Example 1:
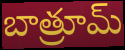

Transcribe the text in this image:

బాత్రూమ్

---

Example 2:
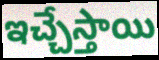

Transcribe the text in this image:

ఇచ్చేస్తాయి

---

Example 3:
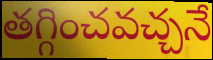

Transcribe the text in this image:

తగ్గించవచ్చనే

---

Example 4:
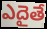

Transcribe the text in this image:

ఎదైతే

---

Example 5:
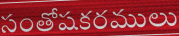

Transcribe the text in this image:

సంతోషకరములు